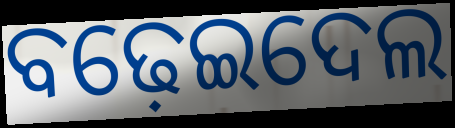
ବଢ଼େଇଦେଲ